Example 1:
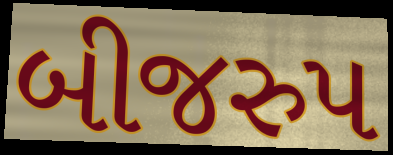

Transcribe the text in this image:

બીજરુપ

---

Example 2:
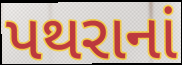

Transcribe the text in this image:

પથરાનાં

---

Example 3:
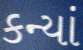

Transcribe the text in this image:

કન્યાં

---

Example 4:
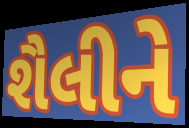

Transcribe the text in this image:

શૈલીને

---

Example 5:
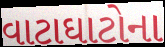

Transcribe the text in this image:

વાટાઘાટોના